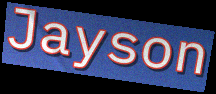
Jayson